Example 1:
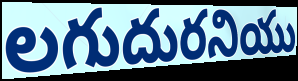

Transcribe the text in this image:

లగుదురనియు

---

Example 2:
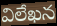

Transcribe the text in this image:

విలేఖన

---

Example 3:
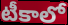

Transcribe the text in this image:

టీకాలో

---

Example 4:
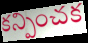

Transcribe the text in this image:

కన్పించక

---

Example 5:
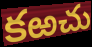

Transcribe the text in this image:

కఱచు